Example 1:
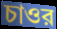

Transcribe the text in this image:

চাওর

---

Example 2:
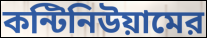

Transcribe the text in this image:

কন্টিনিউয়ামের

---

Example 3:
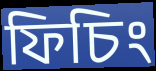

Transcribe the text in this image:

ফিচিং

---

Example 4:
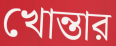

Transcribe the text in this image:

খোন্তার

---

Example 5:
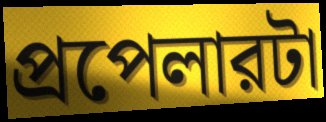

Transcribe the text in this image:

প্রপেলারটা